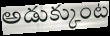
అడుక్కుంట